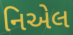
નિએલ